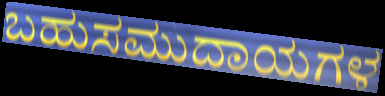
ಬಹುಸಮುದಾಯಗಳ